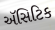
ઍસિટિક